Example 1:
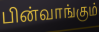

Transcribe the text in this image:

பின்வாங்கும்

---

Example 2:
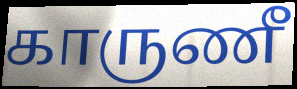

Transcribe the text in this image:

காருணீ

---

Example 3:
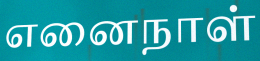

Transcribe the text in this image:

எனைநாள்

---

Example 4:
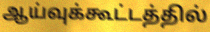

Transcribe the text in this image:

ஆய்வுக்கூட்டத்தில்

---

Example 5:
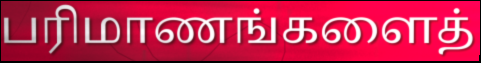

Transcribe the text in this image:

பரிமாணங்களைத்